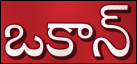
ఒకాన్